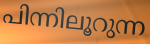
പിന്നിലൂറുന്ന